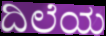
ದಿಲೆಯ